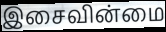
இசைவின்மை